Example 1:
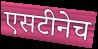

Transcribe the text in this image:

एसटीनेच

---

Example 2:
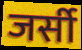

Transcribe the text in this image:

जर्सी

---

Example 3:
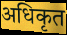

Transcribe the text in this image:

अधिकृत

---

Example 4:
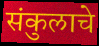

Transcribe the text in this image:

संकुलाचे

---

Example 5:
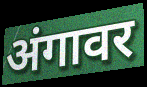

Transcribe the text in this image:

अंगावर